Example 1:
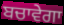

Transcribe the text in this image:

ਬਚਾਵੇਗਾ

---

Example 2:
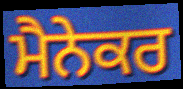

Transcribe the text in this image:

ਮੈਨੇਕਰ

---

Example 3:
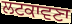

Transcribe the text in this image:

ਲਟਕਾਵਣਾ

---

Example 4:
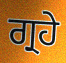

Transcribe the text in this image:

ਗ੍ਰਹੇ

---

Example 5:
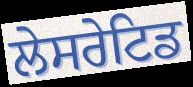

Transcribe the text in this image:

ਲੇਸਰੇਟਿਡ